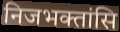
निजभक्तांसि